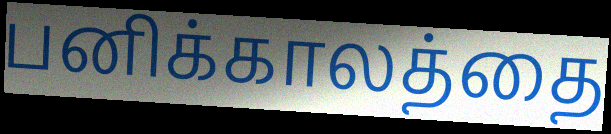
பனிக்காலத்தை